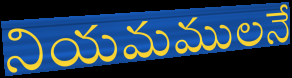
నియమములనే